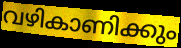
വഴികാണിക്കും